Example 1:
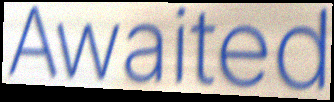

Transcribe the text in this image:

Awaited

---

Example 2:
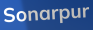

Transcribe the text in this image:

Sonarpur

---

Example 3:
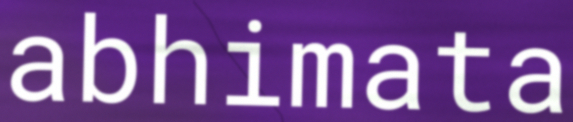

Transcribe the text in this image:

abhimata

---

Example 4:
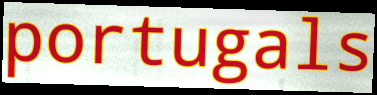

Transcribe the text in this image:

portugals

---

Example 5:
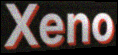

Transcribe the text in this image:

Xeno